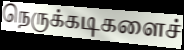
நெருக்கடிகளைச்